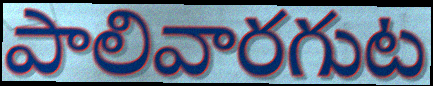
పాలివారగుట